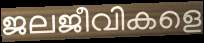
ജലജീവികളെ